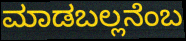
ಮಾಡಬಲ್ಲನೆಂಬ